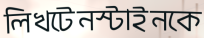
লিখটেনস্টাইনকে